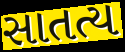
સાતત્ય